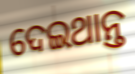
ଦେଇଥାନ୍ତ